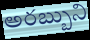
అరబ్బుని